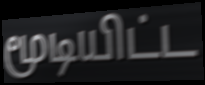
மூடியிட்ட